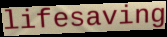
lifesaving